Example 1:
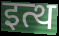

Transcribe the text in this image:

इत्थ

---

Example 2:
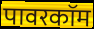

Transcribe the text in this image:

पावरकॉम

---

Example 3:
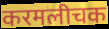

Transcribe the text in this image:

करमलीचक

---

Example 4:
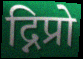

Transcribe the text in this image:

द्निप्रो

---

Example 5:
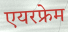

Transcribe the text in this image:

एयरफ्रेम